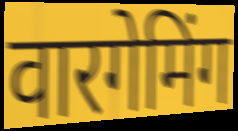
वारगेमिंग